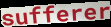
sufferer